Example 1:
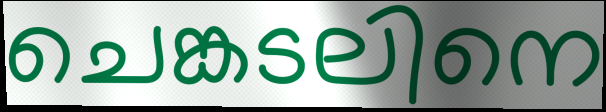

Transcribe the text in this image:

ചെങ്കടലിനെ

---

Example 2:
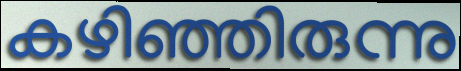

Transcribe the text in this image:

കഴിഞ്ഞിരുന്നു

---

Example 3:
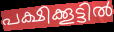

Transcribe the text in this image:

പക്ഷിക്കൂട്ടിൽ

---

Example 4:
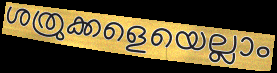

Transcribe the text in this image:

ശത്രുക്കളെയെല്ലാം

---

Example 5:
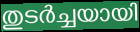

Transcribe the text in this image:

തുടർച്ചയായി